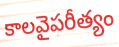
కాలవైపరీత్యం